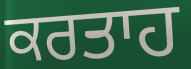
ਕਰਤਾਹ